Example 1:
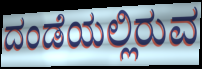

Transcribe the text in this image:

ದಂಡೆಯಲ್ಲಿರುವ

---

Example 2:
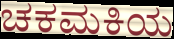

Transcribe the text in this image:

ಚಕಮಕಿಯ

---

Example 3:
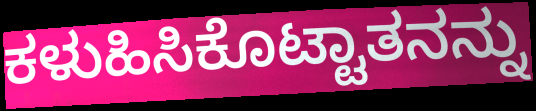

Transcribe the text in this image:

ಕಳುಹಿಸಿಕೊಟ್ಟಾತನನ್ನು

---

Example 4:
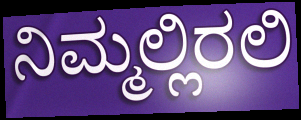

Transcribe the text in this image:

ನಿಮ್ಮಲ್ಲಿರಲಿ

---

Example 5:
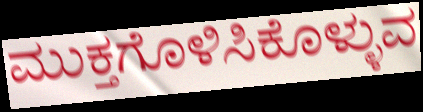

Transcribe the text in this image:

ಮುಕ್ತಗೊಳಿಸಿಕೊಳ್ಳುವ